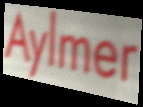
Aylmer